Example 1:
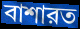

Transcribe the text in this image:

বাশারত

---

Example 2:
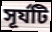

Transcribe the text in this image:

সূর্যটি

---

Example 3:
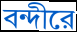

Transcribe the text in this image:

বন্দীরে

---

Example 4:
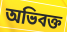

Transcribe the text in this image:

অভিবক্ত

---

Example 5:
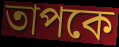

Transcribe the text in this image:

তাপকে